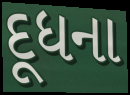
દૂધના